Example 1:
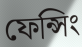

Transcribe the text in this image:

ফেন্সিং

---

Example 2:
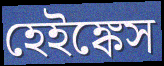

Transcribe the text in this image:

হেইঙ্কেস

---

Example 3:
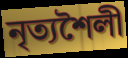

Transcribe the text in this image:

নৃত্যশৈলী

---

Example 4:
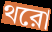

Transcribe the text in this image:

থরো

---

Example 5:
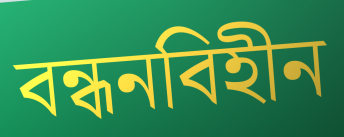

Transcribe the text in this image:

বন্ধনবিহীন